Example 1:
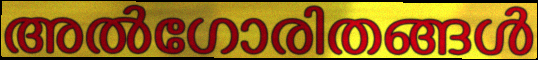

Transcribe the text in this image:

അൽഗോരിതങ്ങൾ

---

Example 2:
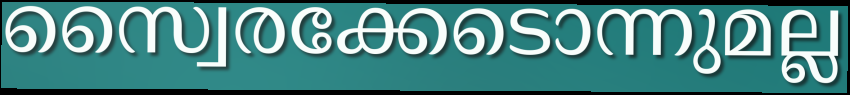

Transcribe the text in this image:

സ്വൈരക്കേടൊന്നുമല്ല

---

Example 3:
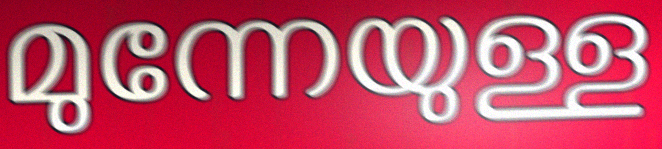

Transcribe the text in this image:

മുന്നേയുള്ള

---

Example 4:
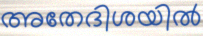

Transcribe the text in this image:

അതേദിശയിൽ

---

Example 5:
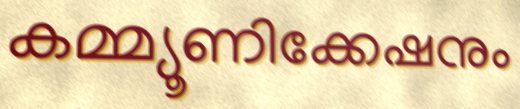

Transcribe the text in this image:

കമ്മ്യൂണിക്കേഷനും